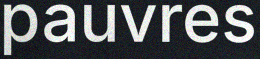
pauvres